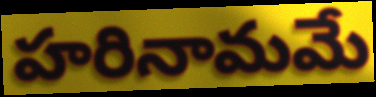
హరినామమే